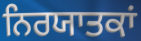
ਨਿਰਯਾਤਕਾਂ